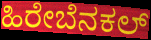
ಹಿರೇಬೆನಕಲ್